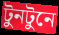
টুনটুনে